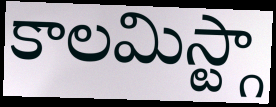
కాలమిస్ట్గా